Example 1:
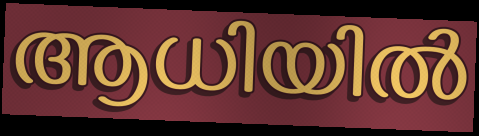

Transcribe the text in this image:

ആധിയിൽ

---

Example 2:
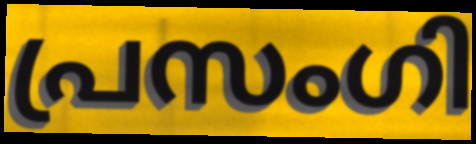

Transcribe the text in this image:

പ്രസംഗി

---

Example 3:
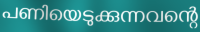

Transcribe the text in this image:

പണിയെടുക്കുന്നവന്റെ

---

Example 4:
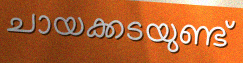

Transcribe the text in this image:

ചായക്കടയുണ്ട്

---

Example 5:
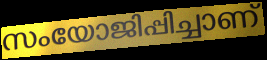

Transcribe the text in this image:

സംയോജിപ്പിച്ചാണ്